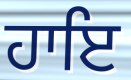
ਹਾਇ